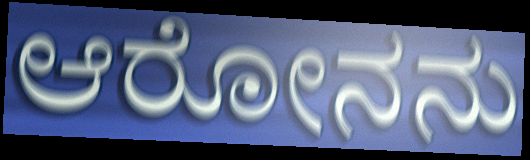
ಆರೋನನು